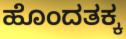
ಹೊಂದತಕ್ಕ